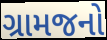
ગ્રામજનો